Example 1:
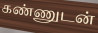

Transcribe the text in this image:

கண்ணுடன்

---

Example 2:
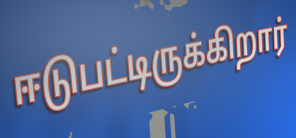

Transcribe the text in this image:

ஈடுபட்டிருக்கிறார்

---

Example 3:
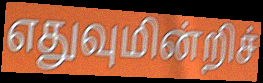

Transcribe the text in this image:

எதுவுமின்றிச்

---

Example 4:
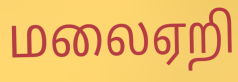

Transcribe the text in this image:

மலைஏறி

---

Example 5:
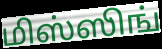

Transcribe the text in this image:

மிஸ்ஸிங்